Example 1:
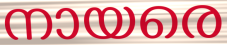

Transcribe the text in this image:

നായരെ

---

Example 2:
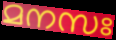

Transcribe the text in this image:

മനസഃ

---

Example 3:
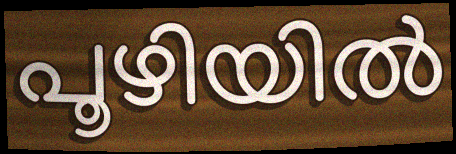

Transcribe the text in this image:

പൂഴിയിൽ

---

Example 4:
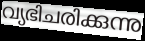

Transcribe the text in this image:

വ്യഭിചരിക്കുന്നു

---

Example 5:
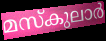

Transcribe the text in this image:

മസ്കുലാർ